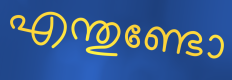
എന്തുണ്ടോ